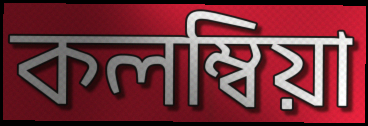
কলম্বিয়া